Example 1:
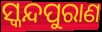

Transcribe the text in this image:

ସ୍କନ୍ଦପୁରାଣ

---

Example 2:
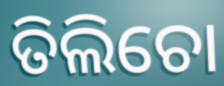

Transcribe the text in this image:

ତିଲିଚୋ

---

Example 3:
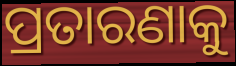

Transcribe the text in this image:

ପ୍ରତାରଣାକୁ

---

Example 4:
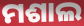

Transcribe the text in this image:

ମଶାଲ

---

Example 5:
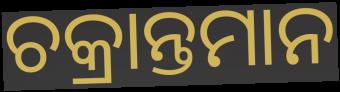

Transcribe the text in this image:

ଚକ୍ରାନ୍ତମାନ